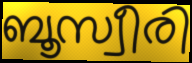
ബൂസ്വീരി